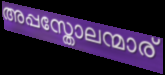
അപ്പസ്തോലന്മാര്